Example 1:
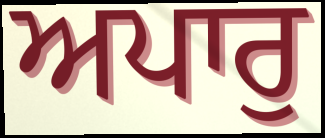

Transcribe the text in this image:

ਅਪਾਰੁ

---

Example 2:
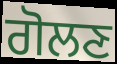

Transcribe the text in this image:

ਗੋਲਣ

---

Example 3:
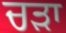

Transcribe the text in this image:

ਚੜਾ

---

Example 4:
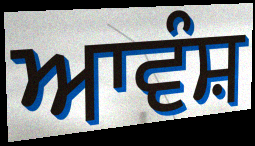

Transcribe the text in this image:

ਆਵੰਸ਼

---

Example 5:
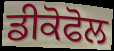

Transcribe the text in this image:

ਡੀਕੋਫੋਲ